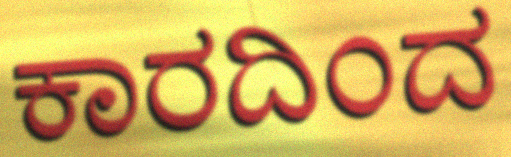
ಕಾರದಿಂದ